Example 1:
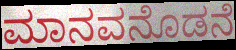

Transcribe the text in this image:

ಮಾನವನೊಡನೆ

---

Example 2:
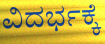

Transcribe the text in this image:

ವಿದರ್ಭಕ್ಕೆ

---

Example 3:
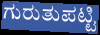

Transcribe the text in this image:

ಗುರುತುಪಟ್ಟಿ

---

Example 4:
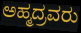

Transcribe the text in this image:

ಅಹ್ಮದ್ರವರು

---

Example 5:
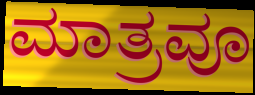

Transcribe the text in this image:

ಮಾತ್ರವೂ